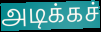
அடிக்கச்